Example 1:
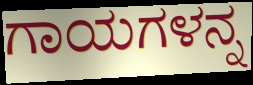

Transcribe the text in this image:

ಗಾಯಗಳನ್ನ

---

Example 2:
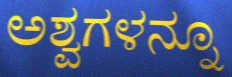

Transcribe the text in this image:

ಅಶ್ವಗಳನ್ನೂ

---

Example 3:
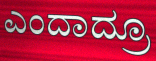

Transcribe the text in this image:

ಎಂದಾದ್ರೂ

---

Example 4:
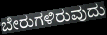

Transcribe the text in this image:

ಬೇರುಗಳಿರುವುದು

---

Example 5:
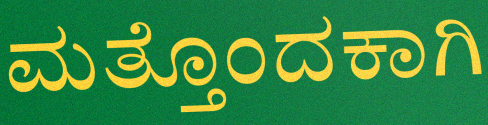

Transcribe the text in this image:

ಮತ್ತೊಂದಕಾಗಿ